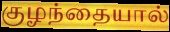
குழந்தையால்